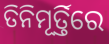
ତିନିମୂର୍ତ୍ତିରେ